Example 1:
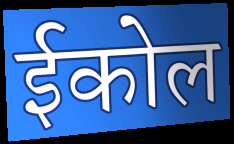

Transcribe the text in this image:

ईकोल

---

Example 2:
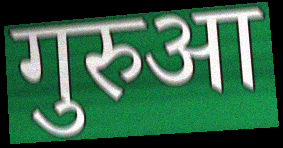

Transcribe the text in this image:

गुरुआ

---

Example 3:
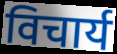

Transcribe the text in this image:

विचार्य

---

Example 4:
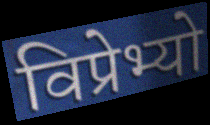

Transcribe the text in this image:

विप्रेभ्यो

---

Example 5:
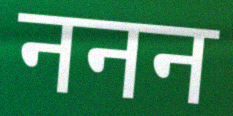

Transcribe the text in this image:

ननन